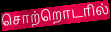
சொற்றொடரில்